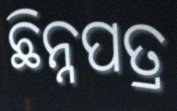
ଛିନ୍ନପତ୍ର